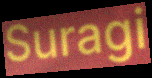
Suragi